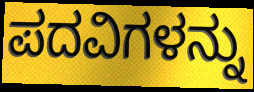
ಪದವಿಗಳನ್ನು